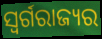
ସ୍ୱର୍ଗରାଜ୍ୟର